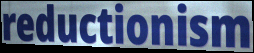
reductionism